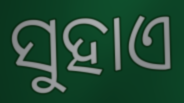
ସୁହାଏ